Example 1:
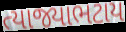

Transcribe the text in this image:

ત્યાજ્યાભટાય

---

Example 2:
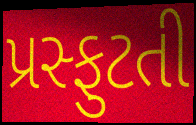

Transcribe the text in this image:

પ્રસ્ફુટતી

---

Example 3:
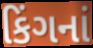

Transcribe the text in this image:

કિંગનાં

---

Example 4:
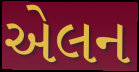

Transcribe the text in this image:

એલન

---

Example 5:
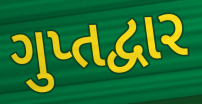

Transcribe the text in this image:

ગુપ્તદ્વાર